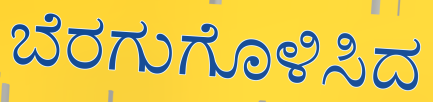
ಬೆರಗುಗೊಳಿಸಿದ